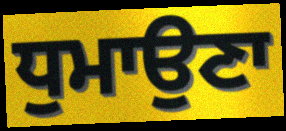
ਧੁਮਾਉਣਾ